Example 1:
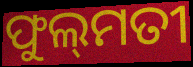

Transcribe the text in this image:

ଫୁଲ୍‍ମତୀ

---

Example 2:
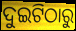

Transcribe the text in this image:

ଦୁଇଟିଠାରୁ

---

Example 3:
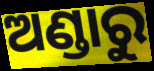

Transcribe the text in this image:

ଅଣ୍ଡାରୁ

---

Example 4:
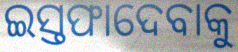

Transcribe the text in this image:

ଇସ୍ତଫାଦେବାକୁ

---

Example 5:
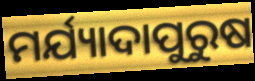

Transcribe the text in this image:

ମର୍ଯ୍ୟାଦାପୁରୁଷ